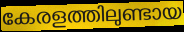
കേരളത്തിലുണ്ടായ